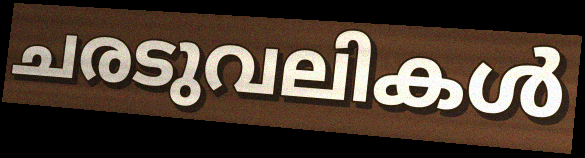
ചരടുവലികൾ